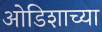
ओडिशाच्या